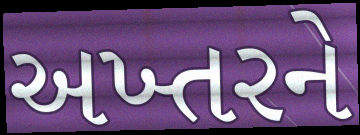
અખ્તરને